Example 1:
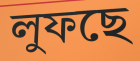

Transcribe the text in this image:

লুফছে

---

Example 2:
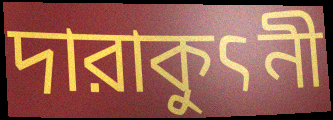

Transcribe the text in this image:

দারাকুৎনী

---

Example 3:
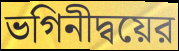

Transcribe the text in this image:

ভগিনীদ্বয়ের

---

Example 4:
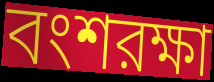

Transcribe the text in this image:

বংশরক্ষা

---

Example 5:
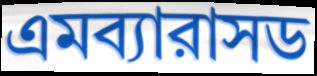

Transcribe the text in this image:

এমব্যারাসড